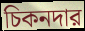
চিকনদার